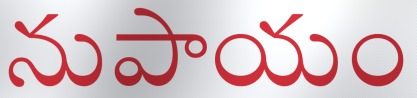
నుపాయం